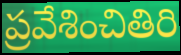
ప్రవేశించితిరి